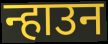
न्हाउन